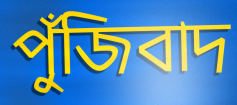
পুঁজিবাদ